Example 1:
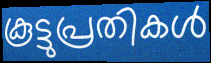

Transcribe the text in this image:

കൂട്ടുപ്രതികൾ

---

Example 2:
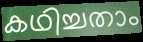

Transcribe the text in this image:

കഥിച്ചതാം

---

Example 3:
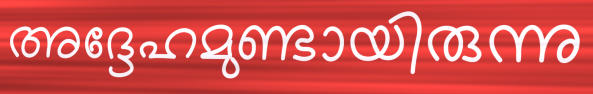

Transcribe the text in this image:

അദ്ദേഹമുണ്ടായിരുന്നു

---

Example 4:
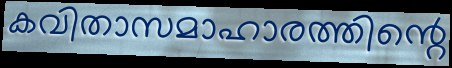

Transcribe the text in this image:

കവിതാസമാഹാരത്തിന്റെ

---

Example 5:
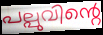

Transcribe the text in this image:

പല്പുവിന്റെ